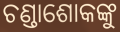
ଚଣ୍ଡାଶୋକଙ୍କୁ